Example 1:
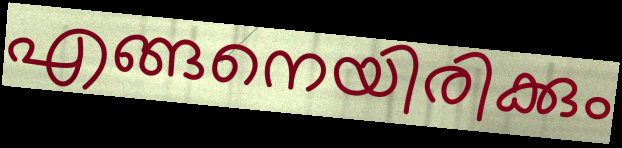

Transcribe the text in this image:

എങ്ങനെയിരിക്കും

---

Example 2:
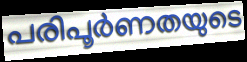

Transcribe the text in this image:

പരിപൂർണതയുടെ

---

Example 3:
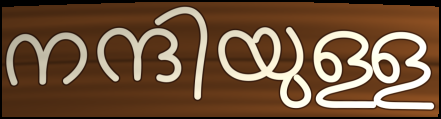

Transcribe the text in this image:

നന്ദിയുള്ള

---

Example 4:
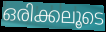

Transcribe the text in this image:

ഒരിക്കലൂടെ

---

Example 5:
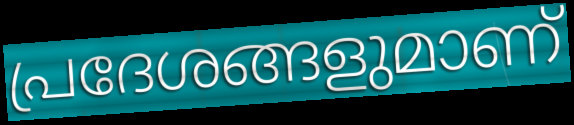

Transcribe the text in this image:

പ്രദേശങ്ങളുമാണ്